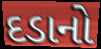
દડાનો